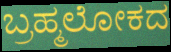
ಬ್ರಹ್ಮಲೋಕದ